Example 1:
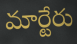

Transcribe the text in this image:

మార్టేరు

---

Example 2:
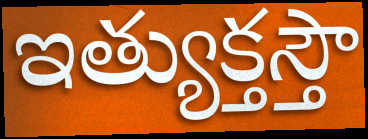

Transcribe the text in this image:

ఇత్యుక్తస్తౌ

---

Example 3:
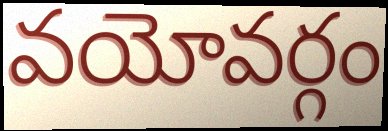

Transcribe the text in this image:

వయోవర్గం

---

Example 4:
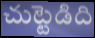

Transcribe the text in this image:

చుట్టెడిది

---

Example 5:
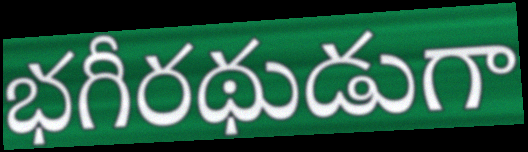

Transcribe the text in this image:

భగీరథుడుగా